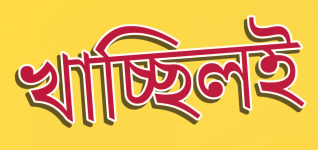
খাচ্ছিলই